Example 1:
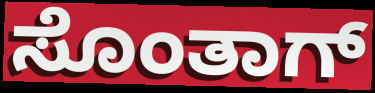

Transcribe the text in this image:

ಸೊಂತಾಗ್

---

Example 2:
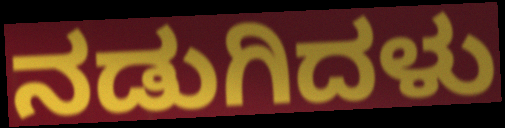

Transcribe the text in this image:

ನಡುಗಿದಳು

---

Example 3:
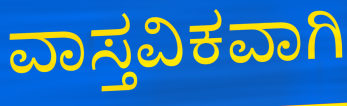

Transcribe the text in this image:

ವಾಸ್ತವಿಕವಾಗಿ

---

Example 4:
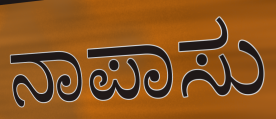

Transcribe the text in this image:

ನಾಪಾಸು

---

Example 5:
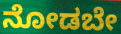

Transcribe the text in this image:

ನೋಡಬೇ